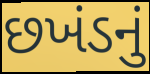
છખંડનું